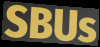
SBUs